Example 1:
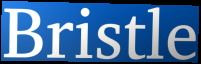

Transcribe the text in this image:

Bristle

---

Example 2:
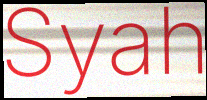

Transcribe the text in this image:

Syah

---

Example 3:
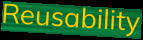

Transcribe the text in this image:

Reusability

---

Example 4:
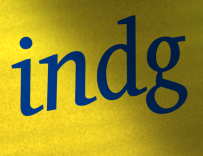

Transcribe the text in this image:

indg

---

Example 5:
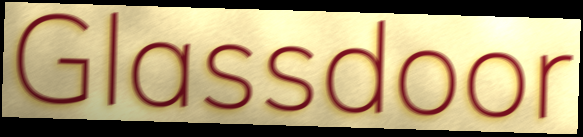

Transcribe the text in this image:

Glassdoor